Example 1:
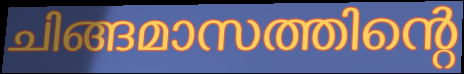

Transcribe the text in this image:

ചിങ്ങമാസത്തിന്റെ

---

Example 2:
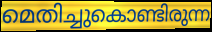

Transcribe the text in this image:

മെതിച്ചുകൊണ്ടിരുന്ന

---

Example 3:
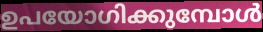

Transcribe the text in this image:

ഉപയോഗിക്കുമ്പോൾ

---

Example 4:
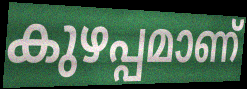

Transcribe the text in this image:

കുഴപ്പമാണ്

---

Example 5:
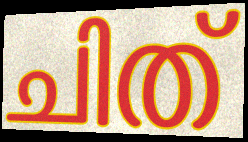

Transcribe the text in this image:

ചിത്